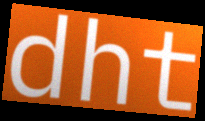
dht